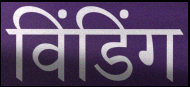
विंडिंग